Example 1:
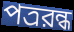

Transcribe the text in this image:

পত্ররন্ধ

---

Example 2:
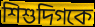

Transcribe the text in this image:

শিশুদিগকে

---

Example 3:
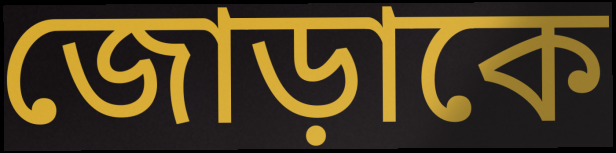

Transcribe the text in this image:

জোড়াকে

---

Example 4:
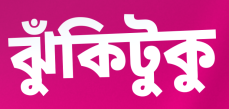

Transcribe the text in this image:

ঝুঁকিটুকু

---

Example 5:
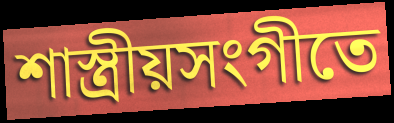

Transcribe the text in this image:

শাস্ত্রীয়সংগীতে